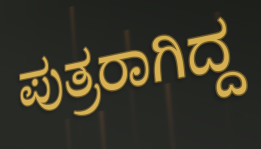
ಪುತ್ರರಾಗಿದ್ದ